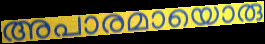
അപാരമായൊരു